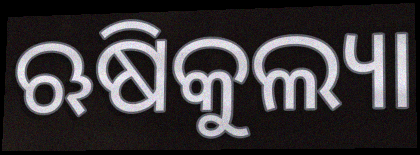
ଋଷିକୁଲ୍ୟା